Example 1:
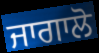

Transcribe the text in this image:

ਜਾਗਾਲੋ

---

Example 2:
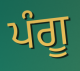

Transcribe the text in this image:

ਪੰਗੂ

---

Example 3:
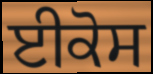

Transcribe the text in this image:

ਈਕੋਸ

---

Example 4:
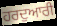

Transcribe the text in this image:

ਹਰਦੁਆਰੀ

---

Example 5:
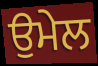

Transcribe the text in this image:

ਉਮੇਲ